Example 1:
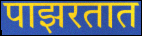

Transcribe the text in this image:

पाझरतात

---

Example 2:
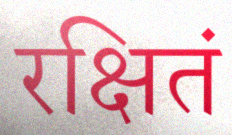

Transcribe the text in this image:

रक्षितं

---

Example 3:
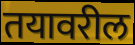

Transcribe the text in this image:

तयावरील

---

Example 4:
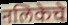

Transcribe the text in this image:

नलिकेचे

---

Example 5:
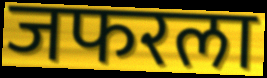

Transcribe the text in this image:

जफरला